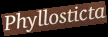
Phyllosticta